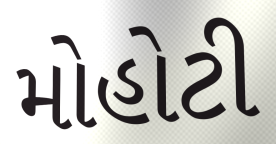
મોહોટી